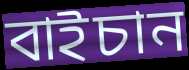
বাইচান